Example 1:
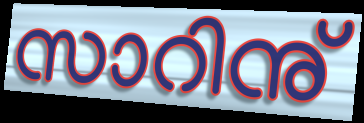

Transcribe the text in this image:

സാറിനു്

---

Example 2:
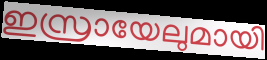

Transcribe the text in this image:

ഇസ്രായേലുമായി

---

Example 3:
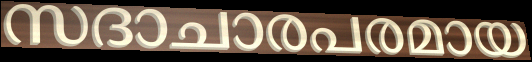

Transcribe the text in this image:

സദാചാരപരമായ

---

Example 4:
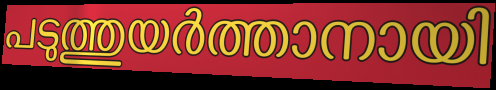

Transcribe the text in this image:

പടുത്തുയർത്താനായി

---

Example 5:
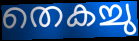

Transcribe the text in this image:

തെകച്ചു